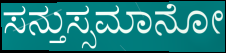
ಸನ್ತುಸ್ಸಮಾನೋ